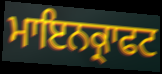
ਮਾਇਨਕ੍ਰਾਫਟ